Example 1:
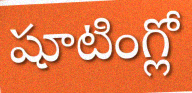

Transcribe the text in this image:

షూటింగ్లో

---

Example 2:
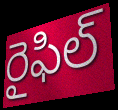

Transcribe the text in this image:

రైఫిల్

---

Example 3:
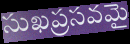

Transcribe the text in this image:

సుఖప్రసవమై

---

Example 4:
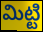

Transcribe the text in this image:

మిట్టి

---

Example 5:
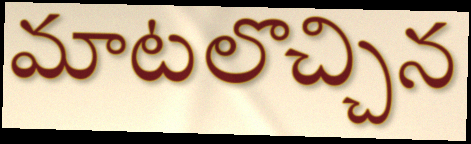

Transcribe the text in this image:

మాటలొచ్చిన